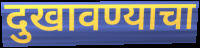
दुखावण्याचा